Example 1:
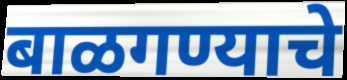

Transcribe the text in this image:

बाळगण्याचे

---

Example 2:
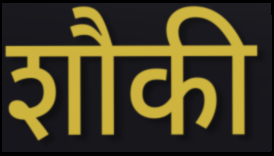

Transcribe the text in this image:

शौकी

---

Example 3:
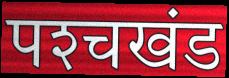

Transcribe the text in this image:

पश्चखंड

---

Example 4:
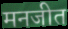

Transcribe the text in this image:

मनजीत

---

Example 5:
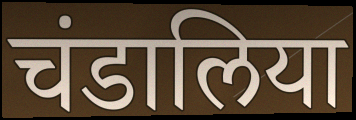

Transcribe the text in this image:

चंडालिया